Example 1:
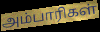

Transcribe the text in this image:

அம்பாரிகள்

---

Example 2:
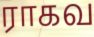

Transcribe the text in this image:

ராகவ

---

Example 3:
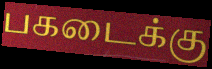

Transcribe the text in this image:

பகடைக்கு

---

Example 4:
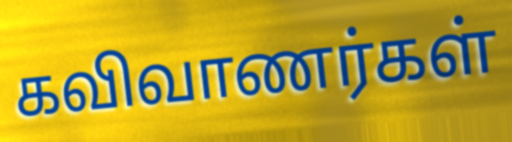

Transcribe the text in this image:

கவிவாணர்கள்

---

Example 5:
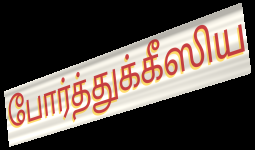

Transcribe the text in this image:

போர்த்துக்கீஸிய